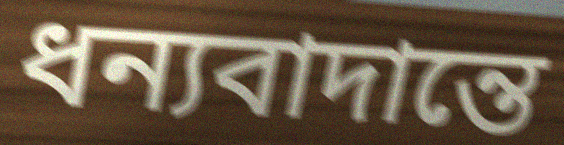
ধন্যবাদান্তে